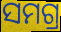
ସମଗ୍ର